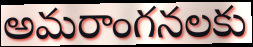
అమరాంగనలకు